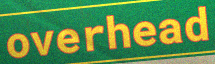
overhead